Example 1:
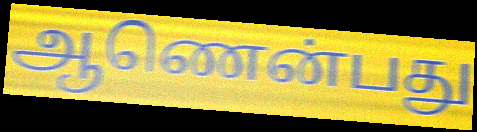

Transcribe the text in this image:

ஆணென்பது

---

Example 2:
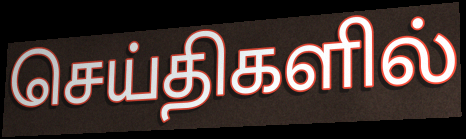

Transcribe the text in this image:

செய்திகளில்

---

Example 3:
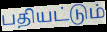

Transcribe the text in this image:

பதியட்டும்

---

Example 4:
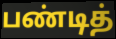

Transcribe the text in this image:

பண்டித்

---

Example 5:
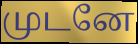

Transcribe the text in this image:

முடனே